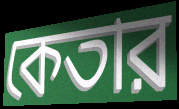
কেতার